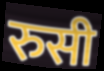
रुसी